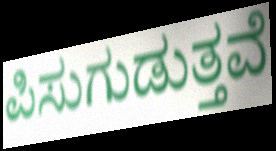
ಪಿಸುಗುಡುತ್ತವೆ